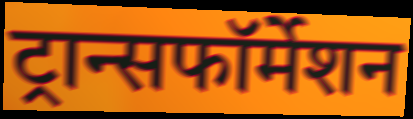
ट्रान्सफॉर्मेशन